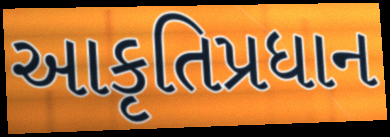
આકૃતિપ્રધાન